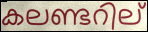
കലണ്ടറില്